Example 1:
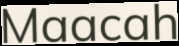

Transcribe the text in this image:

Maacah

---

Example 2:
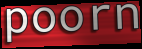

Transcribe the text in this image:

poorn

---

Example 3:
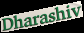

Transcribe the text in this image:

Dharashiv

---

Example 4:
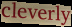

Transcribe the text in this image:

cleverly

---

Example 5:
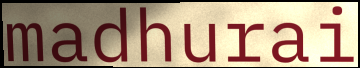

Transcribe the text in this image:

madhurai